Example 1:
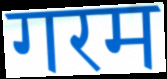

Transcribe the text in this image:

गरम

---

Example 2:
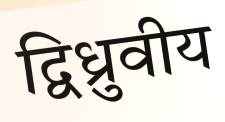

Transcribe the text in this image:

द्विध्रुवीय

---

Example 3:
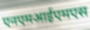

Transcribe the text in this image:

एनएमआईएमएस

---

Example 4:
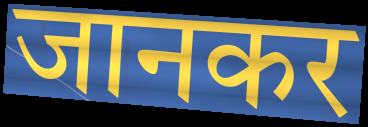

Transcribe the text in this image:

जानकर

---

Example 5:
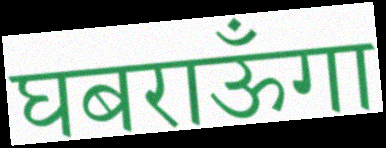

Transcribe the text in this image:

घबराऊँगा